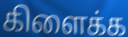
கிளைக்க